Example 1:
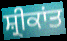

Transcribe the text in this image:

ਸ਼੍ਰੀਕਾਂਤ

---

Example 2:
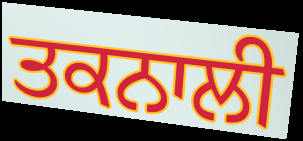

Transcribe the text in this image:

ਤਕਨਾਲੀ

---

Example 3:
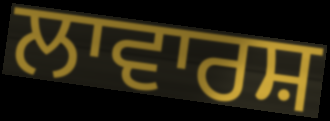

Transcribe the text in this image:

ਲਾਵਾਰਸ਼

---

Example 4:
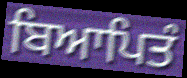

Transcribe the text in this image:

ਬਿਆਪਿਤੰ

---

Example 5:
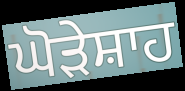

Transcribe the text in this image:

ਘੋੜੇਸ਼ਾਹ